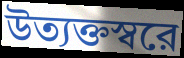
উত্যক্তস্বরে